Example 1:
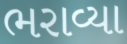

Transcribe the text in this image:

ભરાવ્યા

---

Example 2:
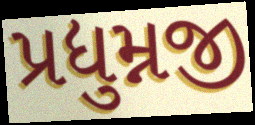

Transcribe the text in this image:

પ્રદ્યુમ્નજી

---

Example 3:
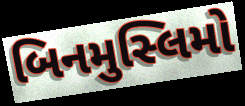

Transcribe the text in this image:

બિનમુસ્લિમો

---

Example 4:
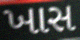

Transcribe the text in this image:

ખાસ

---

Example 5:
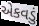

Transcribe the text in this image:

એકવડું